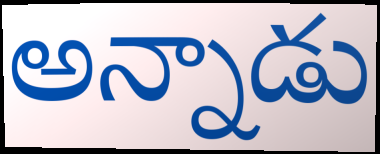
అన్నాడు